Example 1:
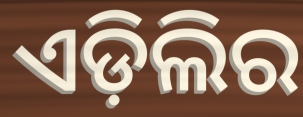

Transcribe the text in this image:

ଏଡ଼ିଲିର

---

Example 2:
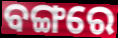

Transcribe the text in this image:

ବଙ୍ଗରେ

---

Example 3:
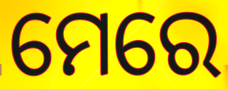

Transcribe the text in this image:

ମେରେ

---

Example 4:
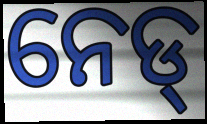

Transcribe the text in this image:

ନେଡ୍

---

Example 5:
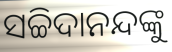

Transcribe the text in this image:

ସଚ୍ଚିଦାନନ୍ଦଙ୍କୁ